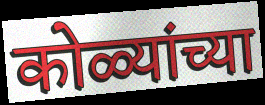
कोळ्यांच्या